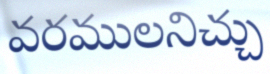
వరములనిచ్చు